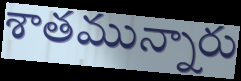
శాతమున్నారు